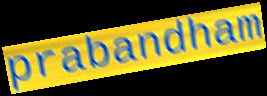
prabandham